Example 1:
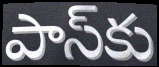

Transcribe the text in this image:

పాస్‌కు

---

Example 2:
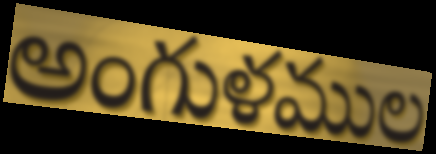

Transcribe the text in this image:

అంగుళముల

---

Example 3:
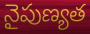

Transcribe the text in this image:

నైపుణ్యత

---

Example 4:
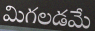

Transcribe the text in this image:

మిగలడమే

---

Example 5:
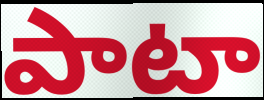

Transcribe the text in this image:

పాటా